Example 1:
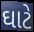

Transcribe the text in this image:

ઘાટે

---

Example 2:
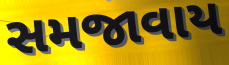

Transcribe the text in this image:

સમજાવાય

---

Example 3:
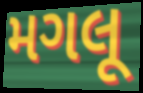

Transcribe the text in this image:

મગલૂ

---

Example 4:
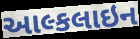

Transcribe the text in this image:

આલ્કલાઇન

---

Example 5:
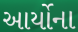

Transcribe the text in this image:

આર્યોના